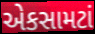
એકસામટાં